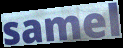
samel